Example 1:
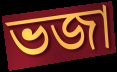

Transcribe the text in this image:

ভজা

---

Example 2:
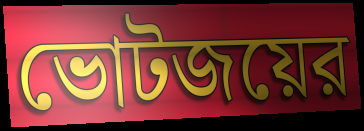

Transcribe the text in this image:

ভোটজয়ের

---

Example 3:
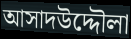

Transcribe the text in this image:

আসাদউদ্দৌলা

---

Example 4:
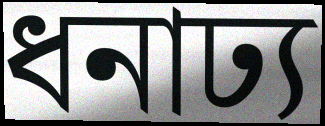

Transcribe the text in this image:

ধনাঢ্য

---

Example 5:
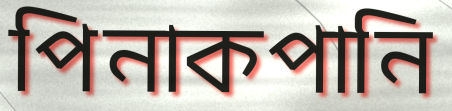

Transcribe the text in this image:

পিনাকপানি